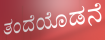
ತಂದೆಯೊಡನೆ